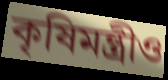
কৃষিমন্ত্রীও